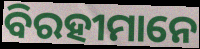
ବିରହୀମାନେ